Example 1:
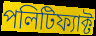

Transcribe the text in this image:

পলিটিফ্যাক্ট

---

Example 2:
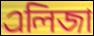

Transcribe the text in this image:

এলিজা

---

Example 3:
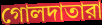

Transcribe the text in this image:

গোলদাতারা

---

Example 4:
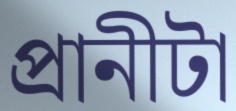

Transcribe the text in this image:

প্রানীটা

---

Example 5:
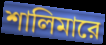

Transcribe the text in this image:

শালিমারে